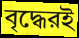
বৃদ্ধেরই